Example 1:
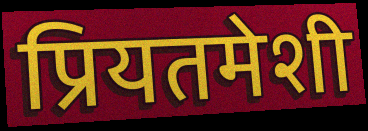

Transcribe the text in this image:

प्रियतमेशी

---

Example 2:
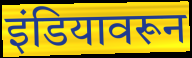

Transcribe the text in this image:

इंडियावरून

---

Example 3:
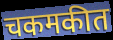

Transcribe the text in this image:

चकमकीत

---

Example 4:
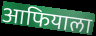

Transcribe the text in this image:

आफियाला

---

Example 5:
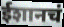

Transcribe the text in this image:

ईशानचं